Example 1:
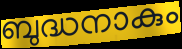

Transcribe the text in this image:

ബുദ്ധനാകും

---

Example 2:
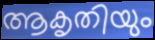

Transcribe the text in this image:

ആകൃതിയും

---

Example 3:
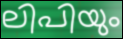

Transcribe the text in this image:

ലിപിയും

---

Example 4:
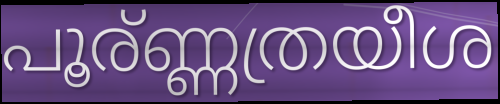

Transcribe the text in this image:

പൂര്ണ്ണത്രയീശ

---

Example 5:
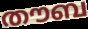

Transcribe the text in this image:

തൗബ